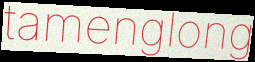
tamenglong